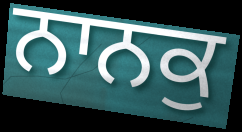
ਨਾਨਕੁ